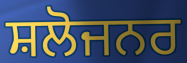
ਸ਼ਲੋਜਨਰ